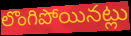
లొంగిపోయినట్లు